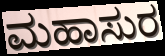
ಮಹಾಸುರ